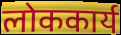
लोककार्य